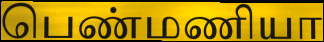
பெண்மணியா